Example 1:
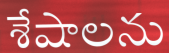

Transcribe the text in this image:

శేషాలను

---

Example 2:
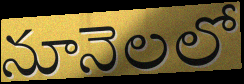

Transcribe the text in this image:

నూనెలలో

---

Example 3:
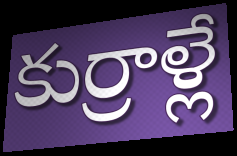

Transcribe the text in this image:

కుర్రాళ్లే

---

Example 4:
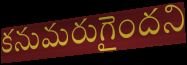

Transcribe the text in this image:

కనుమరుగైందని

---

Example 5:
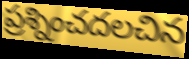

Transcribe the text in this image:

ప్రశ్నించదలచిన